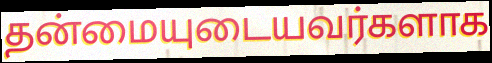
தன்மையுடையவர்களாக